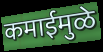
कमाईमुळे